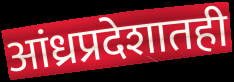
आंध्रप्रदेशातही